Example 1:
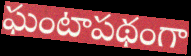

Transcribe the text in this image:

ఘంటాపథంగా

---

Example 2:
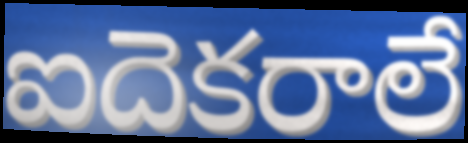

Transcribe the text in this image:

ఐదెకరాలే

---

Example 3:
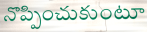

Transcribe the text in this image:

నొప్పించుకుంటూ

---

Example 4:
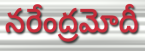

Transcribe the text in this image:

నరేంద్రమోదీ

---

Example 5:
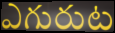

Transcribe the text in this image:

ఎగురుట